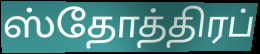
ஸ்தோத்திரப்